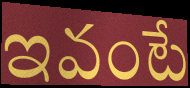
ఇవంటే